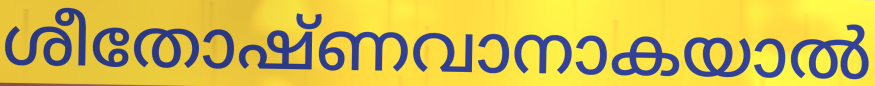
ശീതോഷ്ണവാനാകയാൽ